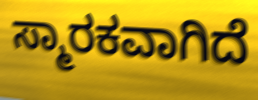
ಸ್ಮಾರಕವಾಗಿದೆ